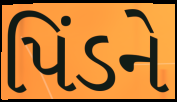
પિંડને